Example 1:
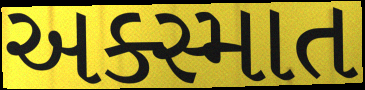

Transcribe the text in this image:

અક્સ્માત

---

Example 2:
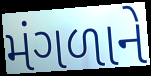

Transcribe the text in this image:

મંગળાને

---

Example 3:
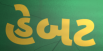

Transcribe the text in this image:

હેબટ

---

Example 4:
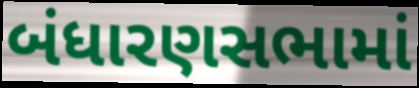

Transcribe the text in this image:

બંધારણસભામાં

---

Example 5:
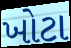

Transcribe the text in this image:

ખોટા